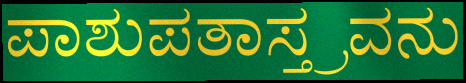
ಪಾಶುಪತಾಸ್ತ್ರವನು